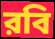
রবি